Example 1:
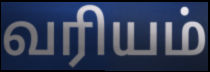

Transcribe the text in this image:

வரியம்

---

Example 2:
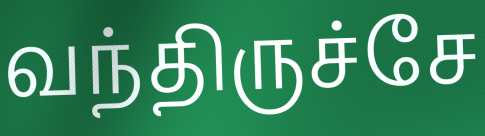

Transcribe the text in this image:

வந்திருச்சே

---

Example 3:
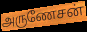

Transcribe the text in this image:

அருணேசன்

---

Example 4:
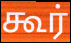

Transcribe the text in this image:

கூர்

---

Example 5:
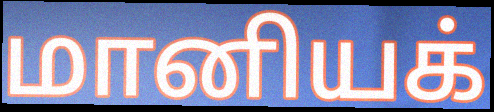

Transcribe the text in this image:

மானியக்